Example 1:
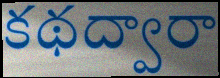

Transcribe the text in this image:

కథద్వారా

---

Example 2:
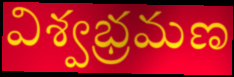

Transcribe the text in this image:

విశ్వభ్రమణ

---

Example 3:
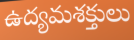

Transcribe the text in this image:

ఉద్యమశక్తులు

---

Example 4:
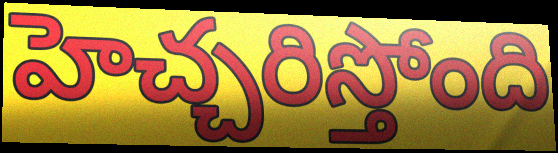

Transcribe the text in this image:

హెచ్చరిస్తోంది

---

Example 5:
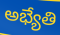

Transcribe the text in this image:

అభ్యేతి